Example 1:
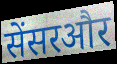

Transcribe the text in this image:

सेंसरऔर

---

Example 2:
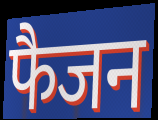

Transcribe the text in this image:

फैजन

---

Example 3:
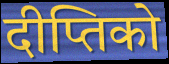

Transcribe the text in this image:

दीप्तिको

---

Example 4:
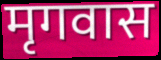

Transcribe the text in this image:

मृगवास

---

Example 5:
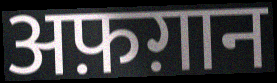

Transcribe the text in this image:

अफ़ग़ान